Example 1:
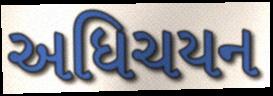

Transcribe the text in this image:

અધિચયન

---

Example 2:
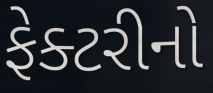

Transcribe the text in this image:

ફેક્ટરીનો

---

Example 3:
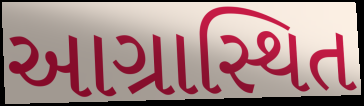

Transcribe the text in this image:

આગ્રાસ્થિત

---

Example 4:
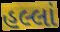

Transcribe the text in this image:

હલ્લાં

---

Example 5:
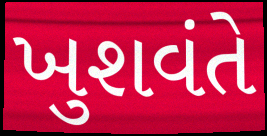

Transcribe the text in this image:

ખુશવંતે